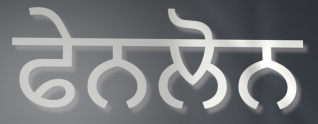
ਫੇਨਲੋਨ